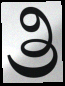
ತಿ